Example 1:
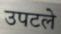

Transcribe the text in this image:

उपटले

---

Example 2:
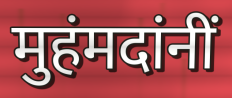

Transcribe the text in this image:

मुहंमदांनीं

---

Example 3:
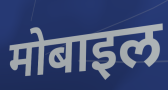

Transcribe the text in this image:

मोबाइल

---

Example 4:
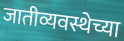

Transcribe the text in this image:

जातीव्यवस्थेच्या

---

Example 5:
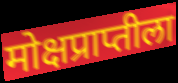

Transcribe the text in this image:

मोक्षप्राप्तीला